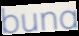
buna